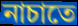
নাচাতে